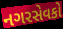
નગરસેવકો